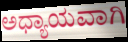
ಅಧ್ಯಾಯವಾಗಿ